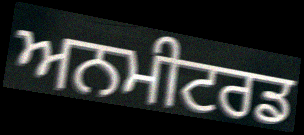
ਅਨਮੀਟਰਡ